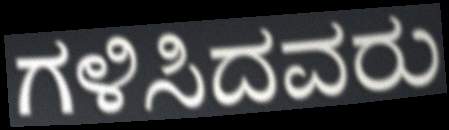
ಗಳಿಸಿದವರು